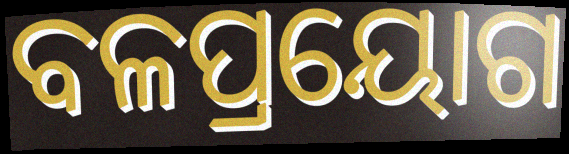
ବଳପ୍ରୟୋଗ